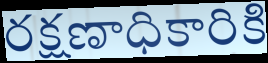
రక్షణాధికారికి